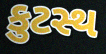
કુટસ્થ